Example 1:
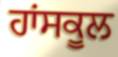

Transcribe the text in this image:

ਹਾਂਸਕੂਲ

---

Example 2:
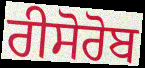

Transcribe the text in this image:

ਰੀਸੋਰੋਬ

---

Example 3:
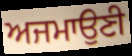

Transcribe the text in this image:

ਅਜਮਾਉਣੀ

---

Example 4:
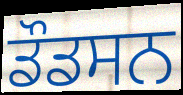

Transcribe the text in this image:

ਡੌਡਸਨ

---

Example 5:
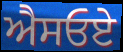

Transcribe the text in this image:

ਐਸਓਏ